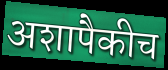
अशापैकीच